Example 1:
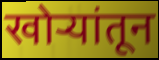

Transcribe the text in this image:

खोऱ्यांतून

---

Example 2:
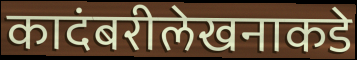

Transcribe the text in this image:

कादंबरीलेखनाकडे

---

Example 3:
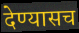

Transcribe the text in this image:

देण्यासच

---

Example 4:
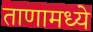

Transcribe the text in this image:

ताणामध्ये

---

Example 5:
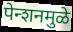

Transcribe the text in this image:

पेन्शनमुळे